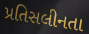
પ્રતિસલીનતા